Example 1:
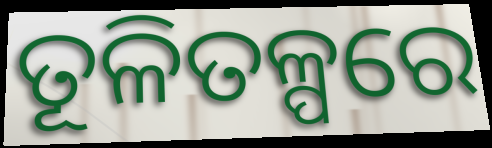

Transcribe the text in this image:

ତୂଳିତଳ୍ପରେ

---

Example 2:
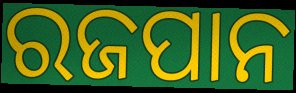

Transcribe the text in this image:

ରଜପାନ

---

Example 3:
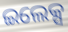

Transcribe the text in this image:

ଇଲେକ୍ସ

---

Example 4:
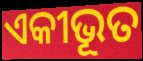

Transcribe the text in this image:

ଏକୀଭୂତ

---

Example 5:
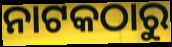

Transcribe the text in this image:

ନାଟକଠାରୁ